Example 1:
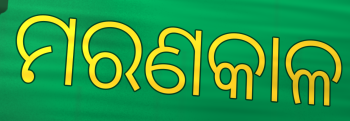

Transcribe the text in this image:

ମରଣକାଳ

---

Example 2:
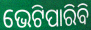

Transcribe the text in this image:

ଭେଟିପାରିବି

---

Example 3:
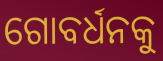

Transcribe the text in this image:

ଗୋବର୍ଧନକୁ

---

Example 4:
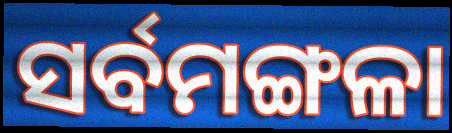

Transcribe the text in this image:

ସର୍ବମଙ୍ଗଳା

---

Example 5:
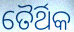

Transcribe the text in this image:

ତୈର୍ଥିକ